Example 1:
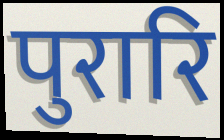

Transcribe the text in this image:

पुरारि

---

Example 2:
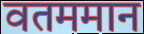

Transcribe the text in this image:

वतममान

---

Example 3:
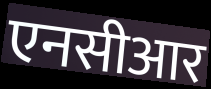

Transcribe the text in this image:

एनसीआर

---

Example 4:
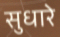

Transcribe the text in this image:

सुधारे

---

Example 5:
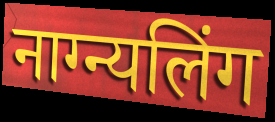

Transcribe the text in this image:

नाग्न्यलिंग